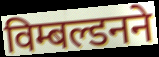
विम्बल्डनने